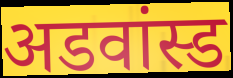
अडवांस्ड